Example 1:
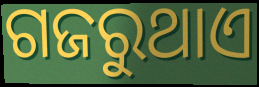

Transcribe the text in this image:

ଗଜରୁଥାଏ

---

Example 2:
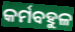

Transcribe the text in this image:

କର୍ମବହୁଳ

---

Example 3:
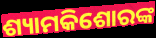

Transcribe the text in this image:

ଶ୍ୟାମକିଶୋରଙ୍କ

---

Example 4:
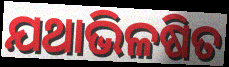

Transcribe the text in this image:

ଯଥାଭିଳଷିତ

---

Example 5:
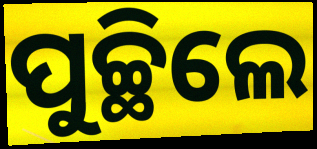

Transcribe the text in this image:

ପୁଚ୍ଛିଲେ